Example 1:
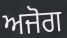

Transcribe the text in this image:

ਅਜੋਗ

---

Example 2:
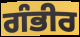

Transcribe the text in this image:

ਗੰਭੀਰ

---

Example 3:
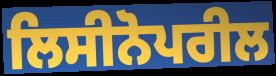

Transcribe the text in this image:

ਲਿਸੀਨੋਪਰੀਲ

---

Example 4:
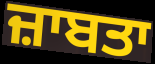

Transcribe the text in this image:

ਜ਼ਾਬਤਾ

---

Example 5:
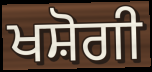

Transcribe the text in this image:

ਖਸ਼ੋਗੀ